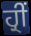
ਹ੍ਰੀਂ